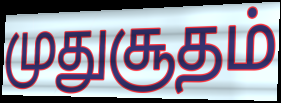
முதுசூதம்